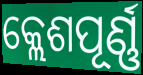
କ୍ଲେଶପୂର୍ଣ୍ଣ